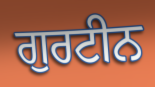
ਗੁਰਟੀਨ